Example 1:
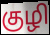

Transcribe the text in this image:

குழி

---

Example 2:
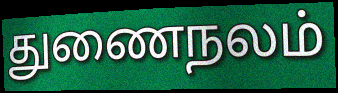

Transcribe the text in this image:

துணைநலம்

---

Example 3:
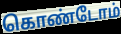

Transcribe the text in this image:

கொண்டோம்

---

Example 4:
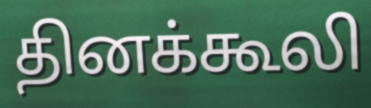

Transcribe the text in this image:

தினக்கூலி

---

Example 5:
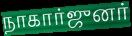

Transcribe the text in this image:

நாகார்ஜுனர்